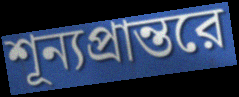
শূন্যপ্রান্তরে